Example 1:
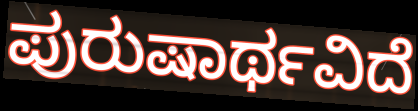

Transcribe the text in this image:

ಪುರುಷಾರ್ಥವಿದೆ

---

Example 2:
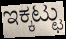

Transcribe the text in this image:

ಇಕ್ಕಟ್ಟು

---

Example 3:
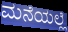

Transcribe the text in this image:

ಮನೆಯಲ್ಲೆ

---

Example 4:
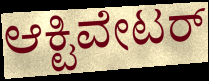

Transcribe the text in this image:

ಆಕ್ಟಿವೇಟರ್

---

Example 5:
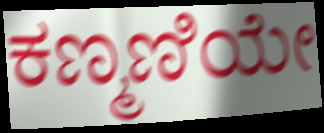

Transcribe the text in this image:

ಕಣ್ಮಣಿಯೇ